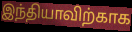
இந்தியாவிற்காக